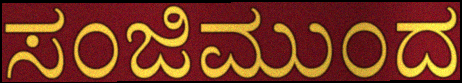
ಸಂಜಿಮುಂದ